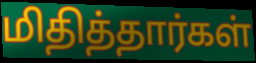
மிதித்தார்கள்